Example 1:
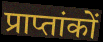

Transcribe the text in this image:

प्राप्तांकों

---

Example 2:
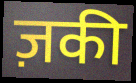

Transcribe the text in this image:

ज़की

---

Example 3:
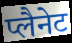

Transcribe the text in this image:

प्लैनेट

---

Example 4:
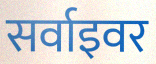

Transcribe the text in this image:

सर्वाइवर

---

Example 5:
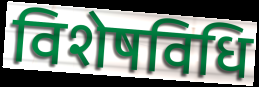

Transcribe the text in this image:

विशेषविधि